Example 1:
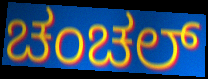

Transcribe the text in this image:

ಚಂಚಲ್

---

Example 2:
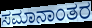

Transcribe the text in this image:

ಸಮಾನಾಂತರ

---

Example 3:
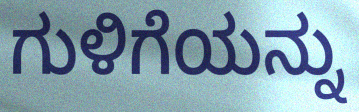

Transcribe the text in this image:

ಗುಳಿಗೆಯನ್ನು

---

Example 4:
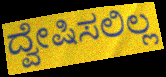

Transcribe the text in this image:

ದ್ವೇಷಿಸಲಿಲ್ಲ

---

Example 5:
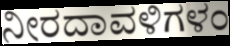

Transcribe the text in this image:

ನೀರದಾವಳಿಗಳಂ